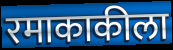
रमाकाकीला